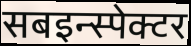
सबइन्स्पेक्टर